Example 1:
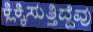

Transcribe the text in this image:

ಕ್ಲಿಕ್ಕಿಸುತ್ತಿದ್ದೆವು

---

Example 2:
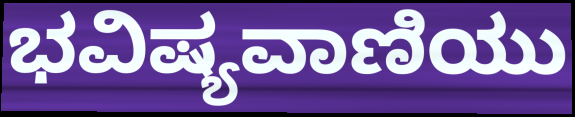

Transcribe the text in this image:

ಭವಿಷ್ಯವಾಣಿಯು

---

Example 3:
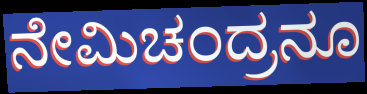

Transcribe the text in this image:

ನೇಮಿಚಂದ್ರನೂ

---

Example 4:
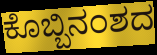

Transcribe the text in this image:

ಕೊಬ್ಬಿನಂಶದ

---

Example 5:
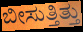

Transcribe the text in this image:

ಬೀಸುತ್ತಿತ್ತು